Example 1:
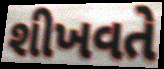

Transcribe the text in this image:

શીખવતે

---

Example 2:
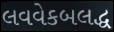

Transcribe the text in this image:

લવવેકબલદ્ધ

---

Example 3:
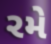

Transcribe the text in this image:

રમે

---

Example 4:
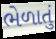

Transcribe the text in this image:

ભેળાતું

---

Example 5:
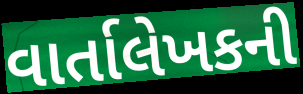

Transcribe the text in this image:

વાર્તાલેખકની